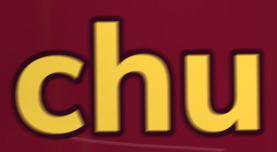
chu